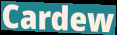
Cardew